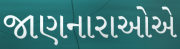
જાણનારાઓએ